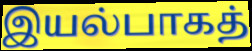
இயல்பாகத்